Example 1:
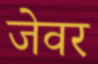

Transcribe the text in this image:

जेवर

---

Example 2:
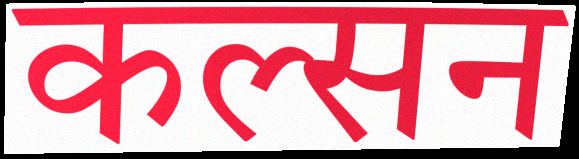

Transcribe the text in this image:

कल्सन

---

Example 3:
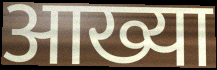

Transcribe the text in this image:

आख्या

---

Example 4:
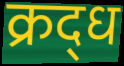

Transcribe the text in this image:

क्रद्ध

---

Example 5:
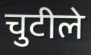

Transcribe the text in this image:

चुटीले